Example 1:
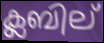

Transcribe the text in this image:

ക്ലബില്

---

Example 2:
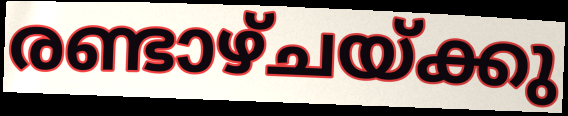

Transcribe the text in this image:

രണ്ടാഴ്ചയ്ക്കു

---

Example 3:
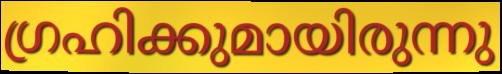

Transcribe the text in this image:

ഗ്രഹിക്കുമായിരുന്നു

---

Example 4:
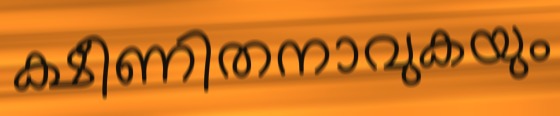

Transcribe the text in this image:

ക്ഷീണിതനാവുകയും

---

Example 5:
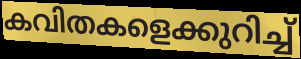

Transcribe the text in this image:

കവിതകളെക്കുറിച്ച്